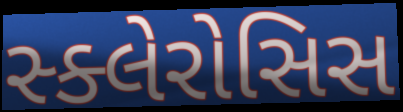
સ્ક્લેરોસિસ